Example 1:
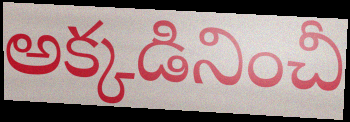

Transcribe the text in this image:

అక్కడినించీ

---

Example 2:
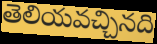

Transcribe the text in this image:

తెలియవచ్చినది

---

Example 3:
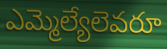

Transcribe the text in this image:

ఎమ్మెల్యేలెవరూ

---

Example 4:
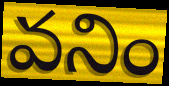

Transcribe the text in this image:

వనిం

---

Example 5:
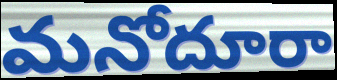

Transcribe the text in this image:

మనోదూరా